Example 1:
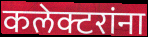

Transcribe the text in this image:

कलेक्टरांना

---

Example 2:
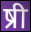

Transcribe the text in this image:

ष्री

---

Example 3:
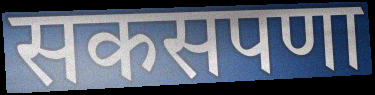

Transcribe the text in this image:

सकसपणा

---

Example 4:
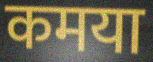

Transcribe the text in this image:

कमया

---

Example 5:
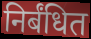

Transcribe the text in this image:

निर्बंधित